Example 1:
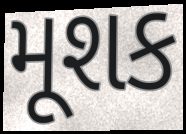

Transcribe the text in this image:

મૂશક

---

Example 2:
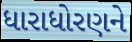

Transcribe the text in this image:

ધારાધોરણને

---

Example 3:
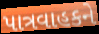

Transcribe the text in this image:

પાત્રવાહકને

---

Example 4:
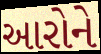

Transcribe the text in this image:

આરોને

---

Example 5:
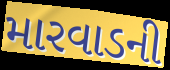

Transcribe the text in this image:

મારવાડની